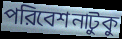
পরিবেশনাটুকু